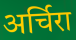
अर्चिरा